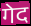
गेद